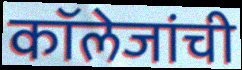
कॉलेजांची